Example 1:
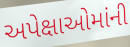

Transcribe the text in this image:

અપેક્ષાઓમાંની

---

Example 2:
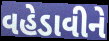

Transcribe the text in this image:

વહેડાવીને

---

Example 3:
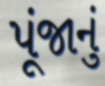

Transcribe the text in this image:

પૂંજાનું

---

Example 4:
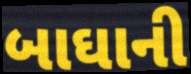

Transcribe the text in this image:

બાઘાની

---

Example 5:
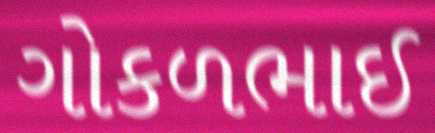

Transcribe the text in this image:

ગોકળભાઈ